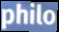
philo